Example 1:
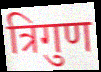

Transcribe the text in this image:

त्रिगुण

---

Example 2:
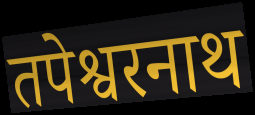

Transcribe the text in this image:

तपेश्वरनाथ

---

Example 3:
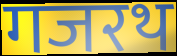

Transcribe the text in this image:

गजरथ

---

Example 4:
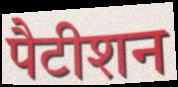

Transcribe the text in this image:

पैटीशन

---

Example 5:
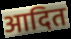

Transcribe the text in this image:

आदित